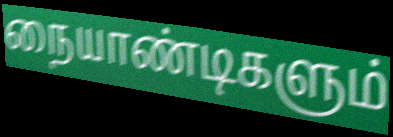
நையாண்டிகளும்